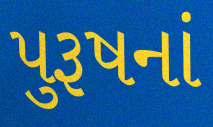
પુરૂષનાં